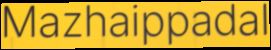
Mazhaippadal